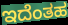
ಇದೆಂತಹ